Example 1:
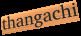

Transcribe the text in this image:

thangachi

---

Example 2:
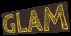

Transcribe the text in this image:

GLAM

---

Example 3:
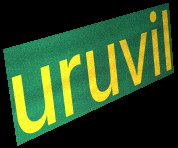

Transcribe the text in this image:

uruvil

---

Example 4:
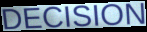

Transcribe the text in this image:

DECISION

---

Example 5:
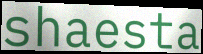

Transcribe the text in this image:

shaesta